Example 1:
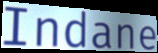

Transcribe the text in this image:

Indane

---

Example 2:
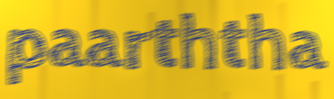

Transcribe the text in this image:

paarththa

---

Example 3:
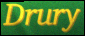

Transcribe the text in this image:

Drury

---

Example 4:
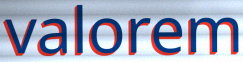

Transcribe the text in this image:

valorem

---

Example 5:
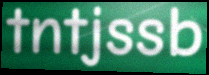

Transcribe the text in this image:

tntjssb